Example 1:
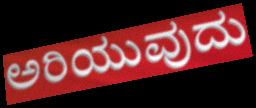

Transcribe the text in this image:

ಅರಿಯುವುದು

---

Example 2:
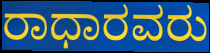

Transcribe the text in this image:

ರಾಧಾರವರು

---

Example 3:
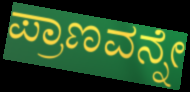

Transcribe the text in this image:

ಪ್ರಾಣವನ್ನೇ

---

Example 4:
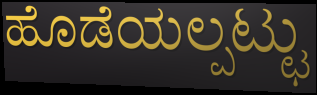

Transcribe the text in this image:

ಹೊಡೆಯಲ್ಪಟ್ಟು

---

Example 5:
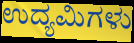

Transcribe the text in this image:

ಉದ್ಯಮಿಗಳು